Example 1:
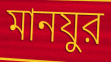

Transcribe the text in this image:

মানযুর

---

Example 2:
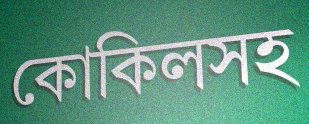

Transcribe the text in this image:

কোকিলসহ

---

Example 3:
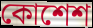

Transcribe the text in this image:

কোশেশ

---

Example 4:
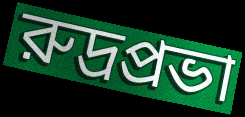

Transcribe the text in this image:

রুদ্রপ্রভা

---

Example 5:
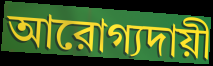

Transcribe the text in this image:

আরোগ্যদায়ী